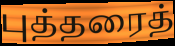
புத்தரைத்